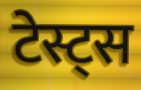
टेस्ट्स